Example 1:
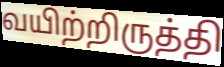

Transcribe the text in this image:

வயிற்றிருத்தி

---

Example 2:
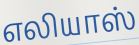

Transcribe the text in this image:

எலியாஸ்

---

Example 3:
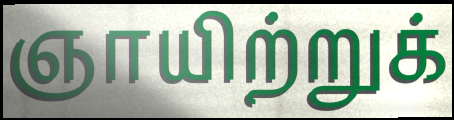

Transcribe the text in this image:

ஞாயிற்றுக்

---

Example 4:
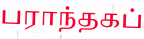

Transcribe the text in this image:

பராந்தகப்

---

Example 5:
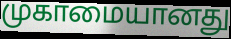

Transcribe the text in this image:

முகாமையானது